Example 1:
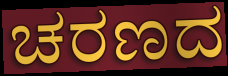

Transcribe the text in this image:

ಚರಣದ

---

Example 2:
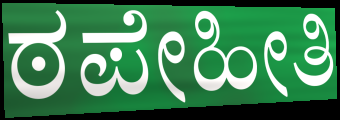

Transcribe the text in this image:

ಠಪೇಹೀತಿ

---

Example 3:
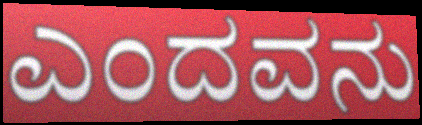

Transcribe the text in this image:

ಎಂದವನು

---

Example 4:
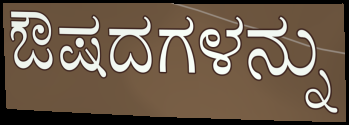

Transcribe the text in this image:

ಔಷದಗಳನ್ನು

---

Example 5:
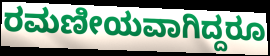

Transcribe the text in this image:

ರಮಣೀಯವಾಗಿದ್ದರೂ